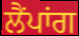
ਲੈਂਪਾਂਗ